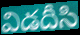
విడదీసి